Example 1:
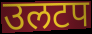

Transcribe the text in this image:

उलटप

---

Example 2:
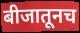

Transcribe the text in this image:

बीजातूनच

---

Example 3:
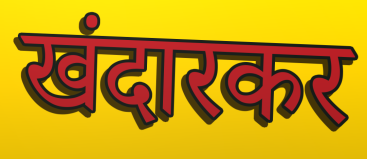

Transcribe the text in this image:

खंदारकर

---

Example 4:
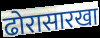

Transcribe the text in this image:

ढोरासारखा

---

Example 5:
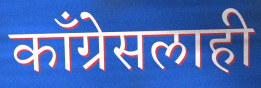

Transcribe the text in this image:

काँग्रेसलाही